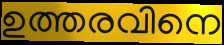
ഉത്തരവിനെ